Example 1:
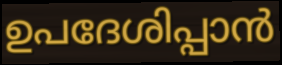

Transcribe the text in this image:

ഉപദേശിപ്പാൻ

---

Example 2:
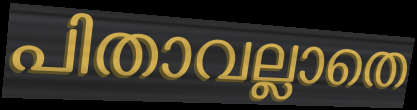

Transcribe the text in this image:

പിതാവല്ലാതെ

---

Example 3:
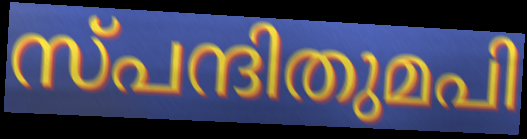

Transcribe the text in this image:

സ്പന്ദിതുമപി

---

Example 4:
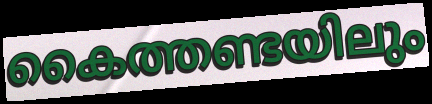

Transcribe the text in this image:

കൈത്തണ്ടയിലും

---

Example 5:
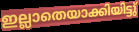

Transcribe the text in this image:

ഇല്ലാതെയാക്കിയിട്ടു്